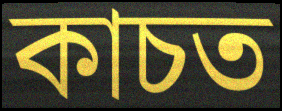
কাচত